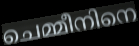
ചെമ്മീനിനെ